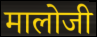
मालोजी